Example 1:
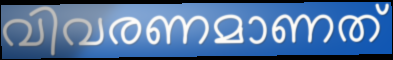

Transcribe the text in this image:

വിവരണമാണത്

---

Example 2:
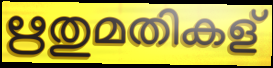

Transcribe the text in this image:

ഋതുമതികള്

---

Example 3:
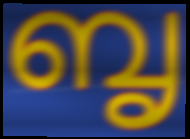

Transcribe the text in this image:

ബൃ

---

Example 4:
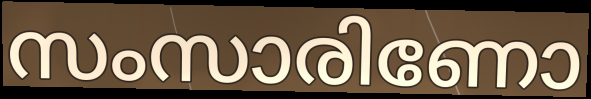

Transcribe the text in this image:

സംസാരിണോ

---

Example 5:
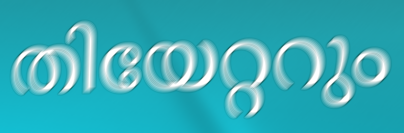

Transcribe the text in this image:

തിയേറ്ററും